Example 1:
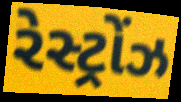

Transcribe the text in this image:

રેસ્ટ્રોંઝ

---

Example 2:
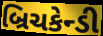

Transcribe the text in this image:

બ્રિચકેન્ડી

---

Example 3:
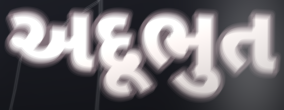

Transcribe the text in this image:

અદૂભુત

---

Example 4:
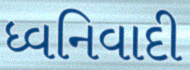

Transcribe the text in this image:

ધ્વનિવાદી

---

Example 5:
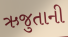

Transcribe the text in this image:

ઋજુતાની